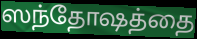
ஸந்தோஷத்தை